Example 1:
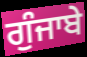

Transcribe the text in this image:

ਗੁੰਜਾਬੇ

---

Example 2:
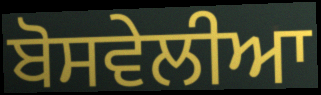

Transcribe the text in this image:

ਬੋਸਵੇਲੀਆ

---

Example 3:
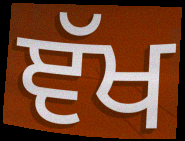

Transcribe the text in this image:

ਞੱਖ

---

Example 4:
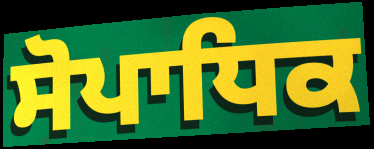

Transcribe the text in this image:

ਸੋਪਾਧਿਕ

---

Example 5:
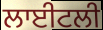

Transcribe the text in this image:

ਲਾਈਟਲੀ